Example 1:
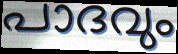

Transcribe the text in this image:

പാദവും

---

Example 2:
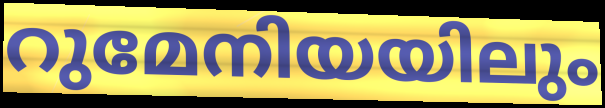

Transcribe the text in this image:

റുമേനിയയിലും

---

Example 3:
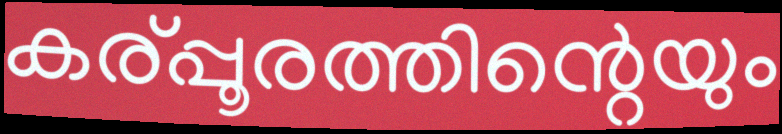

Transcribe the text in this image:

കര്പ്പൂരത്തിന്റെയും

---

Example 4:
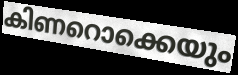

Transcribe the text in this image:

കിണറൊക്കെയും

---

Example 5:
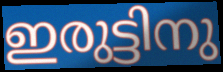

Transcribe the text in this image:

ഇരുട്ടിനു